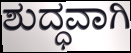
ಶುದ್ಧವಾಗಿ